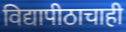
विद्यापीठाचाही